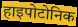
हाइपोटोनिक